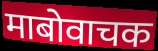
माबोवाचक